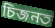
চিজনত